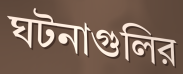
ঘটনাগুলির